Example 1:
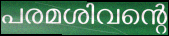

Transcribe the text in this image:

പരമശിവന്റെ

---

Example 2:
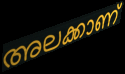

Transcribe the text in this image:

അലക്കാണ്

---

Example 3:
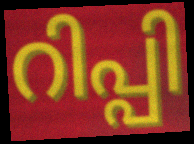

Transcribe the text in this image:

റിപ്പി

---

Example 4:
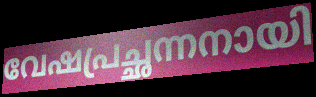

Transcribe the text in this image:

വേഷപ്രച്ഛന്നനായി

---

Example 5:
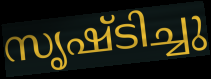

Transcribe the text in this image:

സൃഷ്ടിച്ചു